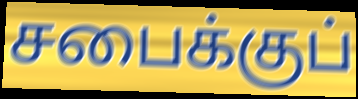
சபைக்குப்